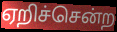
ஏறிச்சென்ற